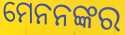
ମେନନଙ୍କର